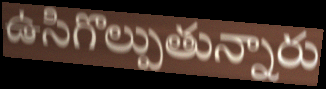
ఉసిగొల్పుతున్నారు